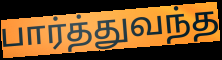
பார்த்துவந்த